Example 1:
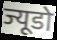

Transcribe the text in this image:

ज्यूडो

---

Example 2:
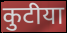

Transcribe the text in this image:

कुटीया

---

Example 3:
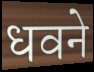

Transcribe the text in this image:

धवने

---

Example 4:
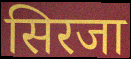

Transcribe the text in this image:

सिरजा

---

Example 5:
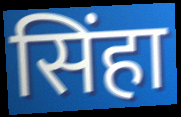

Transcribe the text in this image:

सिंहा